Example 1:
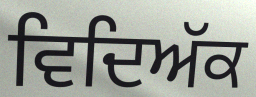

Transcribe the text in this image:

ਵਿਦਿਅੱਕ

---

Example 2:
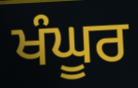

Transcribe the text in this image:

ਖੰਘੂਰ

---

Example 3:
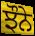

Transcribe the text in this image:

ਝੌਨੇ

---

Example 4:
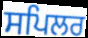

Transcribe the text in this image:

ਸਪਿਲਰ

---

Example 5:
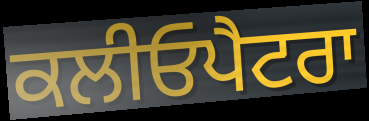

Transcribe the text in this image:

ਕਲੀਓਪੈਟਰਾ